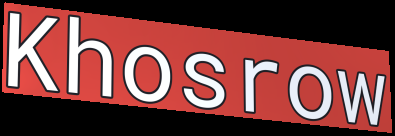
Khosrow